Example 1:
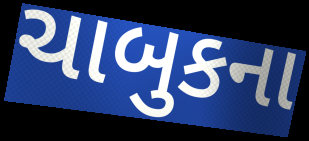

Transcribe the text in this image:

ચાબુકના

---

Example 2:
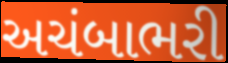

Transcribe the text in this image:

અચંબાભરી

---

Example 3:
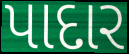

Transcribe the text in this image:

પાદાર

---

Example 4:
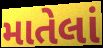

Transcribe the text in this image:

માતેલાં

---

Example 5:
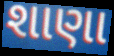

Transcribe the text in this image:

શાણા